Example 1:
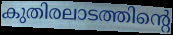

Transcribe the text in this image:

കുതിരലാടത്തിന്റെ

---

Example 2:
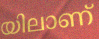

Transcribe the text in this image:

യിലാണ്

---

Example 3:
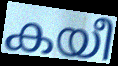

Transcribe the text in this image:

കയീ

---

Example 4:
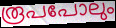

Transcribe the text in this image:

രൂപപോലും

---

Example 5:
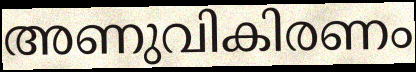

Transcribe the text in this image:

അണുവികിരണം